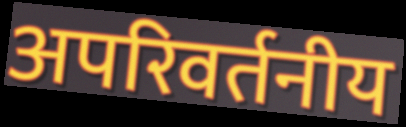
अपरिवर्तनीय